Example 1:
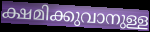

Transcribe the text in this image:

ക്ഷമിക്കുവാനുള്ള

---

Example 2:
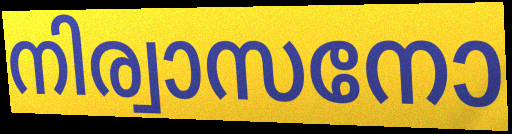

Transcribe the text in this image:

നിര്വാസനോ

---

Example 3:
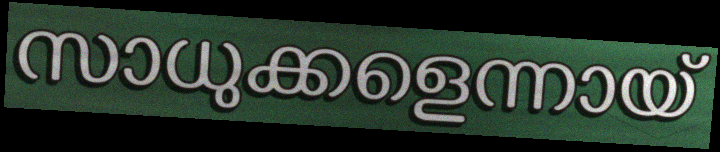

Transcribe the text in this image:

സാധുക്കളെന്നായ്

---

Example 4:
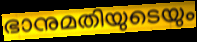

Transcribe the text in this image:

ഭാനുമതിയുടെയും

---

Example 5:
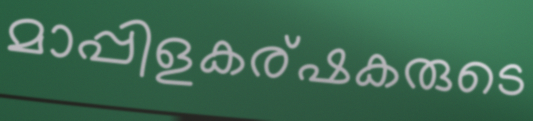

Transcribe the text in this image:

മാപ്പിളകര്ഷകരുടെ